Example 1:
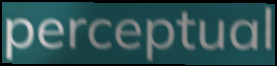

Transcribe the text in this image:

perceptual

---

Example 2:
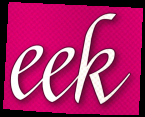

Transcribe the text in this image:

eek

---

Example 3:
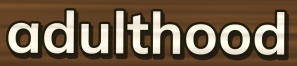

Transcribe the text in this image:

adulthood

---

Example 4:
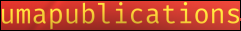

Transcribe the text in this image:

umapublications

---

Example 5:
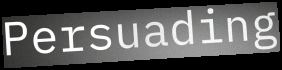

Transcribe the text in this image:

Persuading